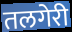
तलगेरी